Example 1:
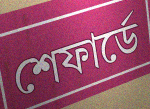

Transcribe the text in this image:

শেফার্ডে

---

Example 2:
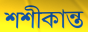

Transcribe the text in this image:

শশীকান্ত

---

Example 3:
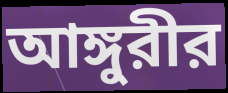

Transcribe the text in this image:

আঙ্গুরীর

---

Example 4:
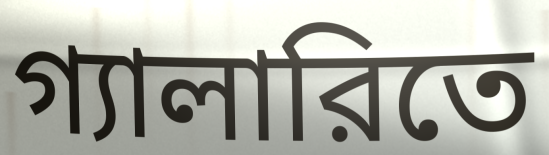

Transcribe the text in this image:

গ্যালারিতে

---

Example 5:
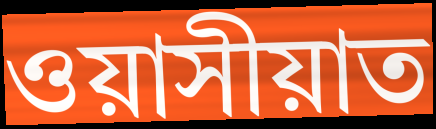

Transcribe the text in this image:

ওয়াসীয়াত